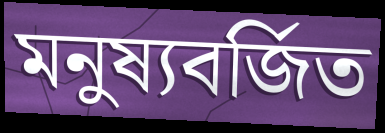
মনুষ্যবর্জিত